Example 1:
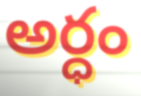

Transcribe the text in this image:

అర్ధం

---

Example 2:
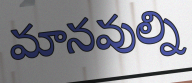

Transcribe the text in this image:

మానవుల్ని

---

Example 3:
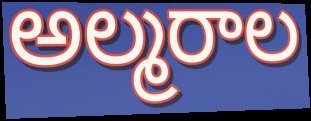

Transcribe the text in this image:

అల్మరాల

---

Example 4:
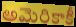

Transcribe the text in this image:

అమెరికాకీ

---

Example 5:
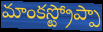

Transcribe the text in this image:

మాంకస్ట్రోప్పా